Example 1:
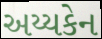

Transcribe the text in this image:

અય્યકેન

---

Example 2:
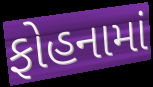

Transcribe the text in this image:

ફોહનામાં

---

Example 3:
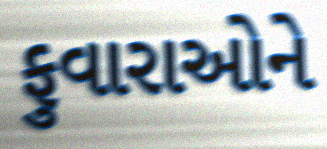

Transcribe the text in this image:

ફુવારાઓને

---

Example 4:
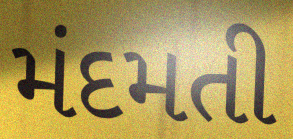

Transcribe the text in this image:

મંદમતી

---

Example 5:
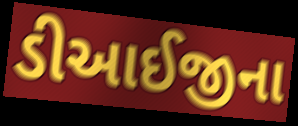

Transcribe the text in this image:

ડીઆઈજીના